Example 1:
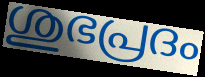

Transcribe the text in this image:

ശുഭപ്രദം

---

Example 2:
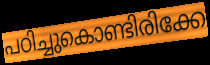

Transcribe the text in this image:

പഠിച്ചുകൊണ്ടിരിക്കേ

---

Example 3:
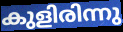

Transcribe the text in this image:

കുളിരിന്നു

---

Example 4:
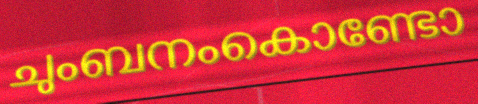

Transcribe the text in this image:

ചുംബനംകൊണ്ടോ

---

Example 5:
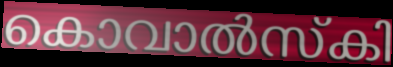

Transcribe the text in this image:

കൊവാൽസ്‌കി